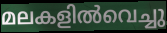
മലകളിൽവെച്ചു